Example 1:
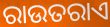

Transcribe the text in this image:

ରାଉତରାଏ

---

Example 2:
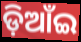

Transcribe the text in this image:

ଡ଼ିଆଁଇ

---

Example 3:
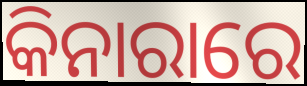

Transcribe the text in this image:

କିନାରାରେ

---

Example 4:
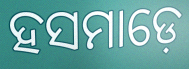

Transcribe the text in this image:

ହସମାଡ଼େ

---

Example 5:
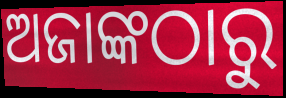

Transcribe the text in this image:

ଅଜାଙ୍କଠାରୁ